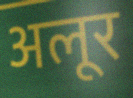
अलूर